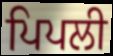
ਪਿਪਲੀ